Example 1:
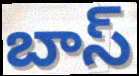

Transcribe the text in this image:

బాస్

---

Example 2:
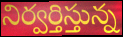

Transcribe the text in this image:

నిర్వర్తిస్తున్న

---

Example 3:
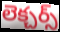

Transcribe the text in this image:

లెక్చర్స్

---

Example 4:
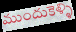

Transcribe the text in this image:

ముందుకెళ్ళి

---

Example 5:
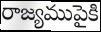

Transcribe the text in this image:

రాజ్యముపైకి